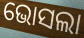
ଭୋସଲା